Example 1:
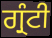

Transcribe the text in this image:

ਗ੍ਰੰਟੀ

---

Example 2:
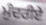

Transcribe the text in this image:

ਮੁੰਦਰੀਏ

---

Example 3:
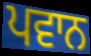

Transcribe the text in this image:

ਪਵਾਨ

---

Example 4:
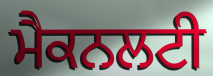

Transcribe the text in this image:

ਮੈਕਨਲਟੀ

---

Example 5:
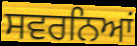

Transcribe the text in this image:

ਸਵਰਨਿਆਂ